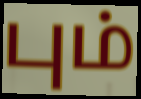
பும்